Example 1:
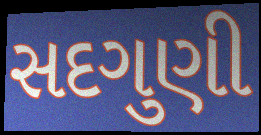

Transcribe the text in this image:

સદગુણી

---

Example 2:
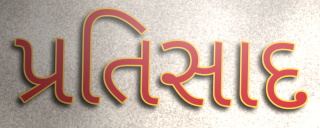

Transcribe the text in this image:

પ્રતિસાદ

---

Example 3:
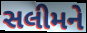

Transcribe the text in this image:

સલીમને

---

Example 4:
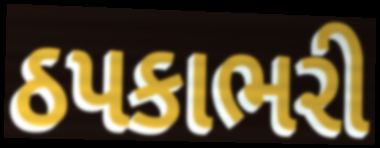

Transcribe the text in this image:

ઠપકાભરી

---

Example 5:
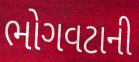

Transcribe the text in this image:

ભોગવટાની